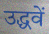
उद्धवें